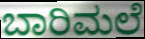
ಬಾರಿಮಲೆ